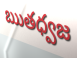
ఋతధ్వజ